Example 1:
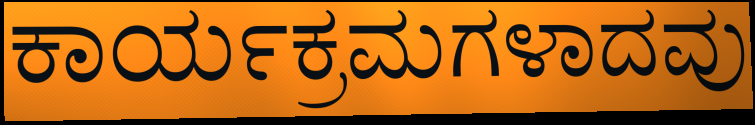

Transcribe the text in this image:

ಕಾರ್ಯಕ್ರಮಗಳಾದವು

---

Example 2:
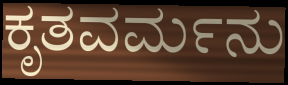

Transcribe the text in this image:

ಕೃತವರ್ಮನು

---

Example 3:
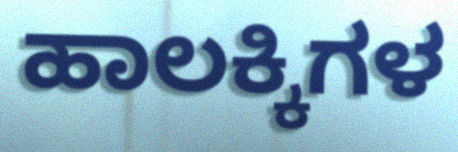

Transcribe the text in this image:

ಹಾಲಕ್ಕಿಗಳ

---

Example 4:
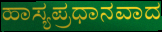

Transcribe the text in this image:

ಹಾಸ್ಯಪ್ರಧಾನವಾದ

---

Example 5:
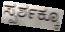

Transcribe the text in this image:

ಸ್ಪರ್ಶಕ್ಕೂ